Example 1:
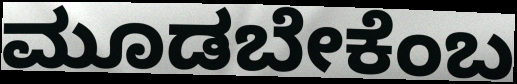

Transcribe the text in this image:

ಮೂಡಬೇಕೆಂಬ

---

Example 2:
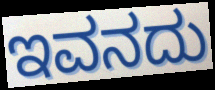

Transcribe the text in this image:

ಇವನದು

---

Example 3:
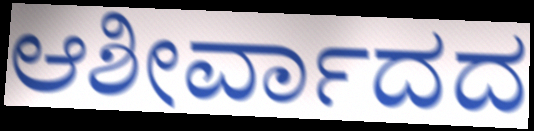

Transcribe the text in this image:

ಆಶೀರ್ವಾದದ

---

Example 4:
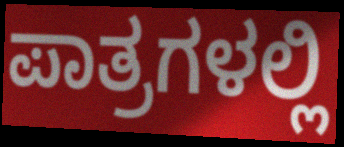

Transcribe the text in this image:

ಪಾತ್ರಗಳಲ್ಲಿ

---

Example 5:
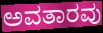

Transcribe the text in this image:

ಅವತಾರವು